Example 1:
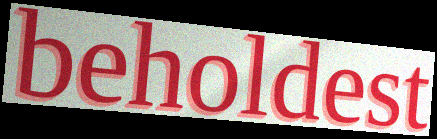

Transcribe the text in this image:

beholdest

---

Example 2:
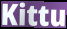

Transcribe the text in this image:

Kittu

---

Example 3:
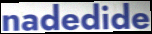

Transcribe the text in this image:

nadedide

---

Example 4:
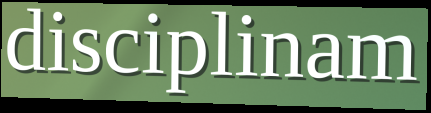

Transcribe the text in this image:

disciplinam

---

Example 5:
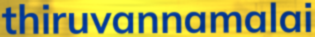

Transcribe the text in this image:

thiruvannamalai